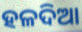
ହଳଦିଆ